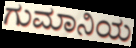
ಗುಮಾನಿಯ